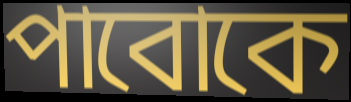
পাবোকে